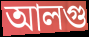
আলগু